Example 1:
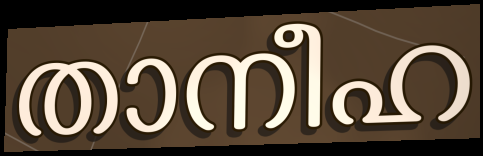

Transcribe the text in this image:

താനീഹ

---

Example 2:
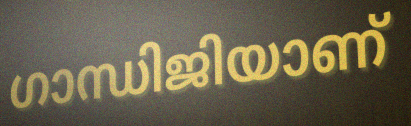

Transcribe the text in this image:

ഗാന്ധിജിയാണ്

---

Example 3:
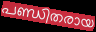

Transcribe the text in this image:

പണ്ഡിതരായ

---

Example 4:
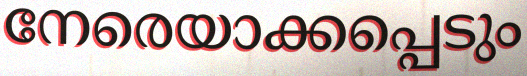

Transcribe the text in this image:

നേരെയാക്കപ്പെടും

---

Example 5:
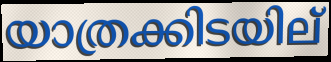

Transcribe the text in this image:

യാത്രക്കിടയില്